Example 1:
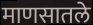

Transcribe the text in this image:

माणसातले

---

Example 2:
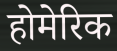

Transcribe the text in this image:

होमेरिक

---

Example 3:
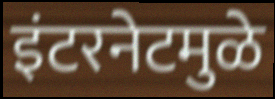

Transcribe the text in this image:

इंटरनेटमुळे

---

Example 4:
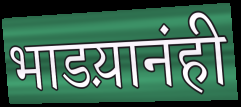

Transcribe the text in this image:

भाडय़ानंही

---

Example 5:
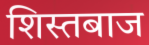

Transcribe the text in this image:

शिस्तबाज